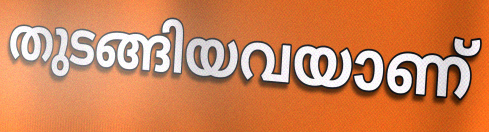
തുടങ്ങിയവയാണ്